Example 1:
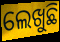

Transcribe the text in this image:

ଲେଖୁଛି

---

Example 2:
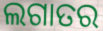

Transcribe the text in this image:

ଲଗାତର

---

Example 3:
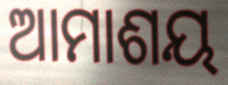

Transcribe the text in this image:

ଆମାଶୟ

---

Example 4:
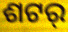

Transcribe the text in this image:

ଶଟର୍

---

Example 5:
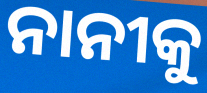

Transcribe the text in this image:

ନାନୀକୁ